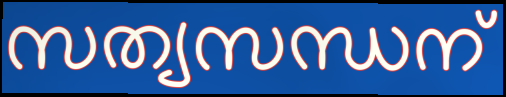
സത്യസന്ധന്